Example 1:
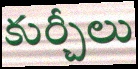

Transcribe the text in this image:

కుర్చీలు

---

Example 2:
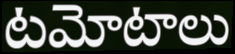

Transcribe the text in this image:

టమోటాలు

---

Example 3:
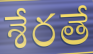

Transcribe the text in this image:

శేరతే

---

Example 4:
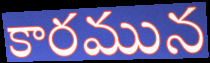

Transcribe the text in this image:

కారమున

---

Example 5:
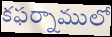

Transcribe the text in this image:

కఫర్నాములో